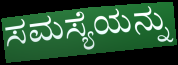
ಸಮಸ್ಯೆಯನ್ನು